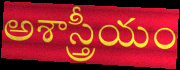
అశాస్త్రీయం